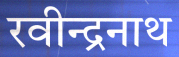
रवीन्‍द्रनाथ